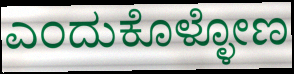
ಎಂದುಕೊಳ್ಳೋಣ